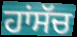
ਹਾਂਸੱਚ